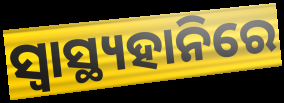
ସ୍ୱାସ୍ଥ୍ୟହାନିରେ